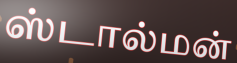
ஸ்டால்மன்